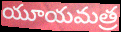
యూయమత్ర